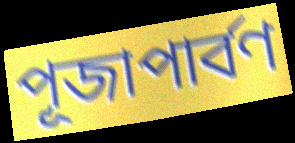
পূজাপার্বণ